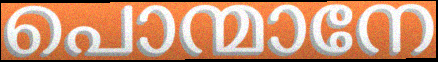
പൊന്മാനേ